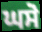
ਘਸੋ